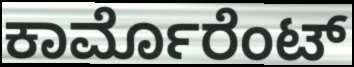
ಕಾರ್ಮೊರೆಂಟ್